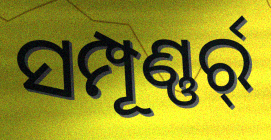
ସମ୍ପୂଣ୍ଣର୍ର୍